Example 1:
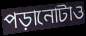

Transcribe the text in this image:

পড়ানোটাও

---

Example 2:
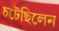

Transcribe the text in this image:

চটেছিলেন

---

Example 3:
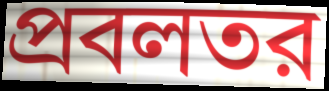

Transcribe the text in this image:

প্রবলতর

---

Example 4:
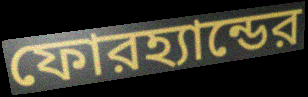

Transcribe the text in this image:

ফোরহ্যান্ডের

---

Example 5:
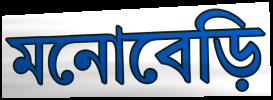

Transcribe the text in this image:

মনোবেড়ি